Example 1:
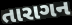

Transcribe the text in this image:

તારાગન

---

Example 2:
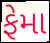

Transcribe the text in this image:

ફેમા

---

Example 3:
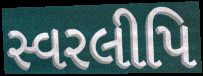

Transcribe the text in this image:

સ્વરલીપિ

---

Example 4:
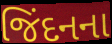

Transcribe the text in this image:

જિંદનના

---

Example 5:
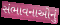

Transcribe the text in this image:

સંભાવનાઓનું